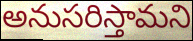
అనుసరిస్తామని